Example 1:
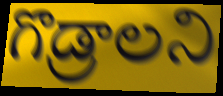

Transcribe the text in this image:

గొడ్రాలని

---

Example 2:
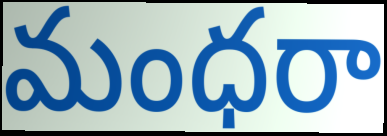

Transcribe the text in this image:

మంధరా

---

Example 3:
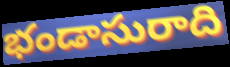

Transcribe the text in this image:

భండాసురాది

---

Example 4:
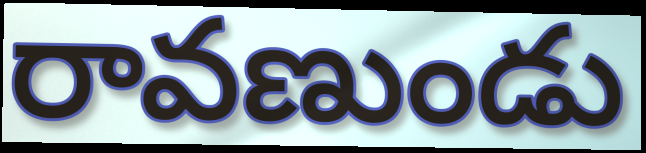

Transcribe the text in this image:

రావణుండు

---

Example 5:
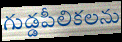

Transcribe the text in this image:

గుడ్డపీలికలను